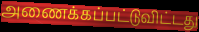
அணைக்கப்பட்டுவிட்டது